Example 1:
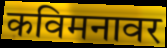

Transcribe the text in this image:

कविमनावर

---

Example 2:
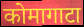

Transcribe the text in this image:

कोमागाटा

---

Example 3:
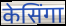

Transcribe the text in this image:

केसिंगा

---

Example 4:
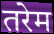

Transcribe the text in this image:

तरेम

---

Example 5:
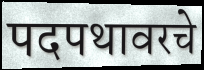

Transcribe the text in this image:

पदपथावरचे